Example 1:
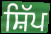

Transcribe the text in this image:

ਸ਼ਿੱਪ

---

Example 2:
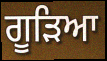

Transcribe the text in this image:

ਗੂੜਿਆ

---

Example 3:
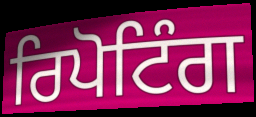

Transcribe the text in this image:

ਰਿਪੋਟਿੰਗ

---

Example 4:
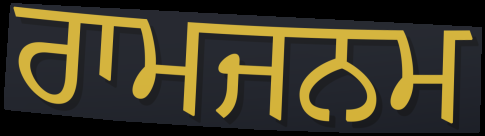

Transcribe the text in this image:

ਰਾਮਜਨਮ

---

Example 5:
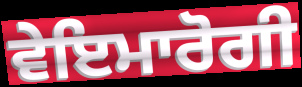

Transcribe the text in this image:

ਵੇਇਮਾਰੋਗੀ